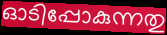
ഓടിപ്പോകുന്നതു